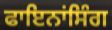
ਫਾਇਨਾਂਸਿੰਗ